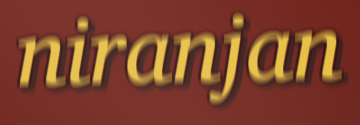
niranjan